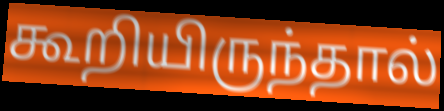
கூறியிருந்தால்